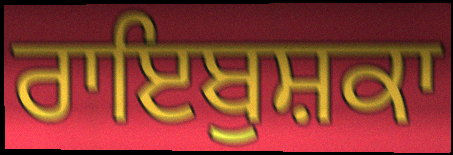
ਰਾਇਬੁਸ਼ਕਾ